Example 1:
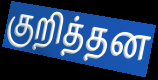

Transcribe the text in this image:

குறித்தன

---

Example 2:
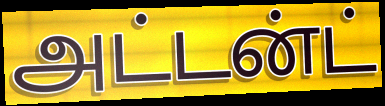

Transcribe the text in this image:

அட்டன்ட்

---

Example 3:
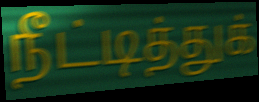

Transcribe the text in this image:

நீட்டித்துக்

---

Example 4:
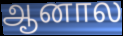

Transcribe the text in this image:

ஆனால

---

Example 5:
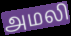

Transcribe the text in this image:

அமலி